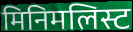
मिनिमलिस्ट